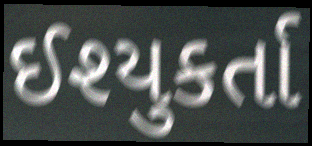
ઈશ્યુકર્તા